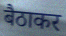
बैठाकर